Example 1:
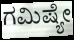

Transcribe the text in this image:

ಗಮಿಷ್ಯೇ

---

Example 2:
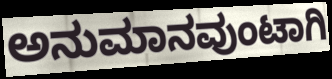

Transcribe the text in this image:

ಅನುಮಾನವುಂಟಾಗಿ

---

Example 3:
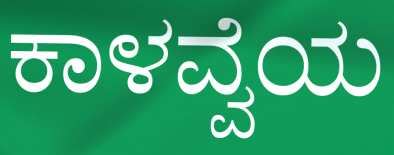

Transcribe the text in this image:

ಕಾಳವ್ವೆಯ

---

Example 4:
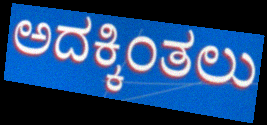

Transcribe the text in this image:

ಅದಕ್ಕಿಂತಲು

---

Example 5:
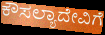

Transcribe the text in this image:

ಕೌಸಲ್ಯಾದೇವಿಗೆ